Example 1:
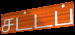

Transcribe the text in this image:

சட்டப்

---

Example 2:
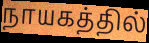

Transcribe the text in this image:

நாயகத்தில்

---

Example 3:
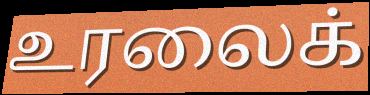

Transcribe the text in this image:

உரலைக்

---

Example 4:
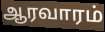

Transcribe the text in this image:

ஆரவாரம்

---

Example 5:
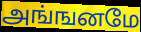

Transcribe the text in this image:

அங்ஙனமே